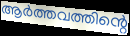
ആർത്തവത്തിന്റെ